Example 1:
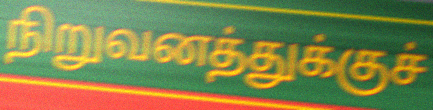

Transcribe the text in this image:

நிறுவனத்துக்குச்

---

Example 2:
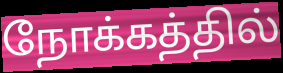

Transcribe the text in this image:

நோக்கத்தில்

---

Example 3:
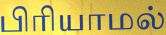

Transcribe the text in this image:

பிரியாமல்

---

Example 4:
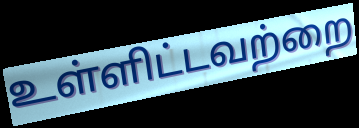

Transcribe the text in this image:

உள்ளிட்டவற்றை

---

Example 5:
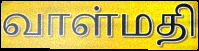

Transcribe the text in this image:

வாள்மதி